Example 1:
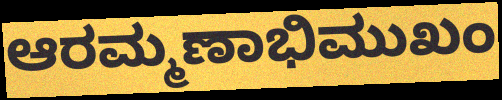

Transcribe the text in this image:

ಆರಮ್ಮಣಾಭಿಮುಖಂ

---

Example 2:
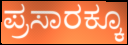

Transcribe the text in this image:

ಪ್ರಸಾರಕ್ಕೂ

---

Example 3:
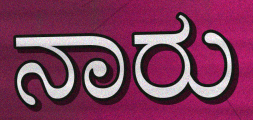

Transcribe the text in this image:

ನಾರು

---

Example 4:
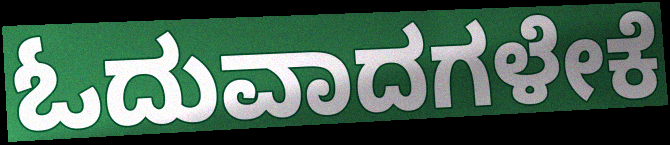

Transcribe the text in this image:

ಓದುವಾದಗಳೇಕೆ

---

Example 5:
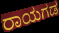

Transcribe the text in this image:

ರಾಯಗಡ